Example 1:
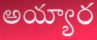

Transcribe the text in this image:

అయ్యార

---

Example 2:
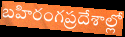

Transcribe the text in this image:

బహిరంగప్రదేశాల్లో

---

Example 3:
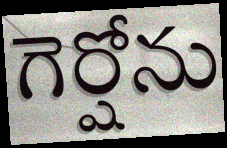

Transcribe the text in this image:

గెర్షోను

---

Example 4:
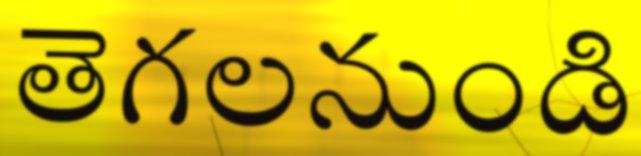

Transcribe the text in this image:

తెగలనుండి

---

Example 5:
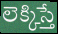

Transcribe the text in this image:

లెక్కిస్తే